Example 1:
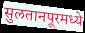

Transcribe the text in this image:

सुलतानपूरमध्ये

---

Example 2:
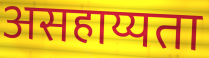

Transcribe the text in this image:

असहाय्यता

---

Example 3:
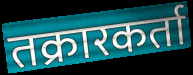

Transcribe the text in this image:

तक्रारकर्ता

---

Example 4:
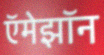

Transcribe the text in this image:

ऍमेझॉन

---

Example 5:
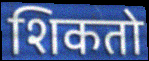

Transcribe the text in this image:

शिकतो